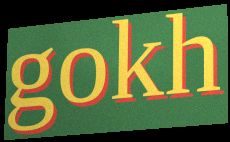
gokh